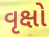
વૃક્ષો